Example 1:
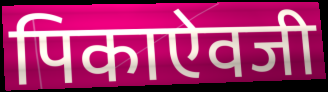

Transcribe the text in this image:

पिकाऐवजी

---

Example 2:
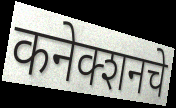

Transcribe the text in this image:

कनेक्शनचे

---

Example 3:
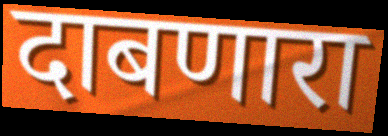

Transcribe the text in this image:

दाबणारा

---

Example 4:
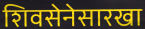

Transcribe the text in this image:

शिवसेनेसारखा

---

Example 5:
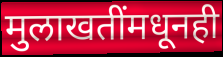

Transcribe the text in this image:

मुलाखतींमधूनही